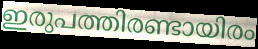
ഇരുപത്തിരണ്ടായിരം